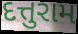
દત્તુરામ